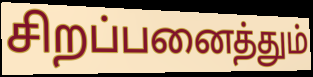
சிறப்பனைத்தும்